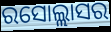
ରସୋଲ୍ଲାସର